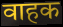
वाहक